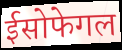
ईसोफेगल